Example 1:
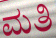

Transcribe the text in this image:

ಮತಿ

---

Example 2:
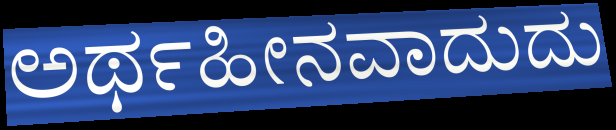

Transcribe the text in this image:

ಅರ್ಥಹೀನವಾದುದು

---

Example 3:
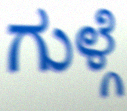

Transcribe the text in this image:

ಗುಳ್ಗೆ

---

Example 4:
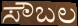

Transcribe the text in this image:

ಸೌಬಲ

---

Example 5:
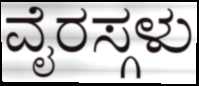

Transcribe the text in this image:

ವೈರಸ್ಗಳು